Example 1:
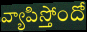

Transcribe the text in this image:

వ్యాపిస్తోందో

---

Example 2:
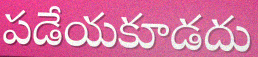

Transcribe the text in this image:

పడేయకూడదు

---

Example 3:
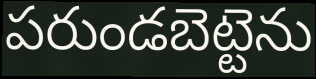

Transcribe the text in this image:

పరుండబెట్టెను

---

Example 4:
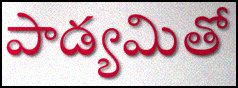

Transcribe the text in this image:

పాడ్యమితో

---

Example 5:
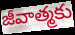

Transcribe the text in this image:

జీవాత్మకు